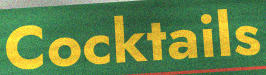
Cocktails